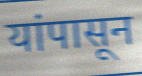
यांपासून